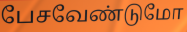
பேசவேண்டுமோ